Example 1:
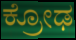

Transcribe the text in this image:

ಕ್ರೋಢ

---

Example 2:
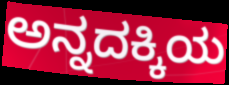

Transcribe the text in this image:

ಅನ್ನದಕ್ಕಿಯ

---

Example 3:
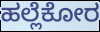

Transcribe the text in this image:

ಹಲ್ಲೆಕೋರ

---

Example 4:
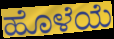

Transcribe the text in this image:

ಹೊಳೆಯೆ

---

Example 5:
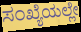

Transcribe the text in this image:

ಸಂಖ್ಯೆಯಲ್ಲೇ